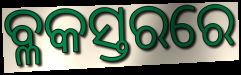
ବ୍ଳକସ୍ତରରେ